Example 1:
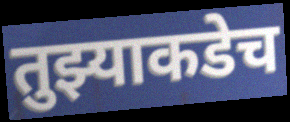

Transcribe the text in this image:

तुझ्याकडेच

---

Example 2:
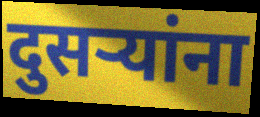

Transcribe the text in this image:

दुसऱ्यांना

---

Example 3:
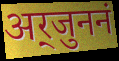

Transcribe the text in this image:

अर्जुननं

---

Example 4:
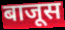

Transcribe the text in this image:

बाजूस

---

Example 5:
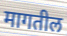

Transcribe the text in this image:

मागतील